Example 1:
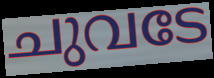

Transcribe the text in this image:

ചുവടേ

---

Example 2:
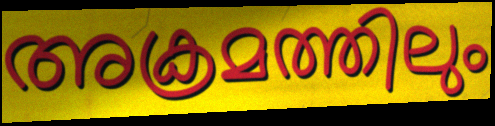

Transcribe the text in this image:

അക്രമത്തിലും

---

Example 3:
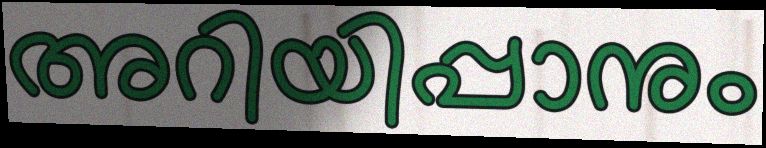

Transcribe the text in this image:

അറിയിപ്പാനും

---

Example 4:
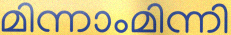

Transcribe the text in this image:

മിന്നാംമിന്നി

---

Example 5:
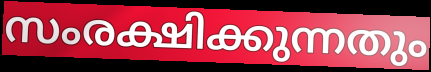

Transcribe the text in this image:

സംരക്ഷിക്കുന്നതും